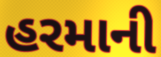
હરમાની